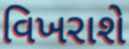
વિખરાશે